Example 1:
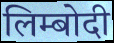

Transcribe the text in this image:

लिम्बोदी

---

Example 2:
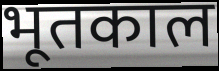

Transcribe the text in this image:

भूतकाल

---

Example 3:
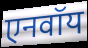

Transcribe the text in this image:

एनवॉय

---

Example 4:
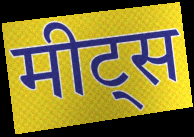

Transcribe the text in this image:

मीट्स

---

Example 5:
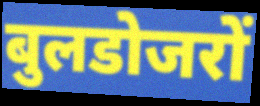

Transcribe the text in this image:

बुलडोजरों